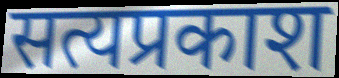
सत्यप्रकाश